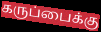
கருப்பைக்கு